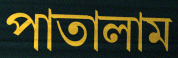
পাতালাম